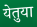
येतुया